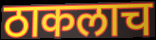
ठाकलाच